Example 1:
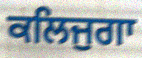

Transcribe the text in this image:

ਕਲਿਜੁਗਾ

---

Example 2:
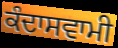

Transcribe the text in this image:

ਕੰਦਾਸਵਾਮੀ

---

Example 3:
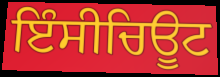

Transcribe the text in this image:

ਇੰਸੀਚਿਊਟ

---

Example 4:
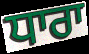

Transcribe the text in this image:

ਧਾਰਾ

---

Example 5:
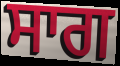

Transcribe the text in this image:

ਸਾਗ